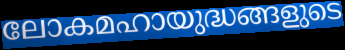
ലോകമഹായുദ്ധങ്ങളുടെ